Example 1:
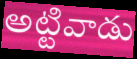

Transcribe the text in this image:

అట్టివాడు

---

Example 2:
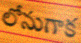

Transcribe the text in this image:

లోనుగాక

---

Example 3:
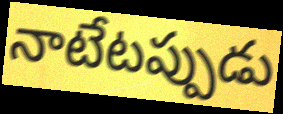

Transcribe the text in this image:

నాటేటప్పుడు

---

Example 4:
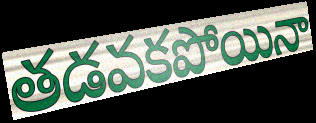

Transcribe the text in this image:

తడవకపోయినా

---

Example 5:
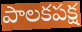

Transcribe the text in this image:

పాలకపక్ష